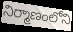
నిర్మాణంలోని